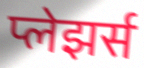
प्लेझर्स